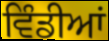
ਵਿੰਡੀਆਂ